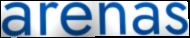
arenas